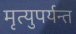
मृत्युपर्यन्त